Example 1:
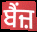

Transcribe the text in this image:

ਬੈਂਜ਼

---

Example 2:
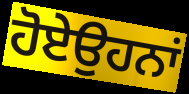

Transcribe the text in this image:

ਹੋਏਉਹਨਾਂ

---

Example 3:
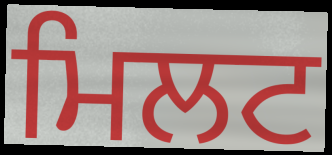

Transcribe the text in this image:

ਮਿਲਟ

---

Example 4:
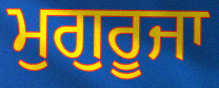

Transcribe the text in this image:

ਮੁਗੁਰੂਜਾ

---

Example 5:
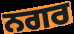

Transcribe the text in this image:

ਨਗਰ